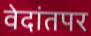
वेदांतपर